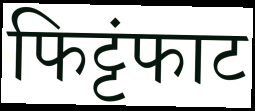
फिट्टंफाट